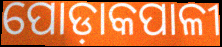
ପୋଡ଼ାକପାଳୀ